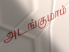
அடங்குமாம்